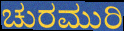
ಚುರಮುರಿ